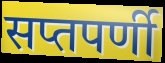
सप्तपर्णी